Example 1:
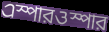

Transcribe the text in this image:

এস্পারওস্পার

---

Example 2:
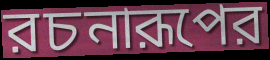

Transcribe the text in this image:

রচনারূপের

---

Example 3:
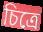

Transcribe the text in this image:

চিত্রে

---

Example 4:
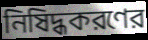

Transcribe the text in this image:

নিষিদ্ধকরণের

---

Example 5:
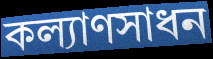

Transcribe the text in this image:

কল্যাণসাধন